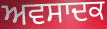
ਅਵਸਾਦਕ